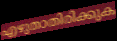
എഴുതാതിരിക്കുക